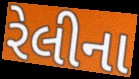
રેલીના